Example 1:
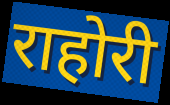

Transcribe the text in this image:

राहोरी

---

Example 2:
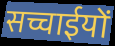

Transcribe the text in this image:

सच्चाईयों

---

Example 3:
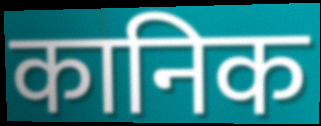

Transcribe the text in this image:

कानिक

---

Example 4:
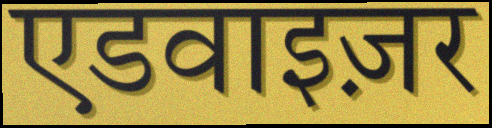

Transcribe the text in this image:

एडवाइज़र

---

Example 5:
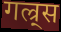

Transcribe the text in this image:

गल्र्स